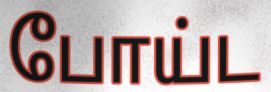
போய்ட